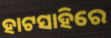
ହାଟସାହିରେ